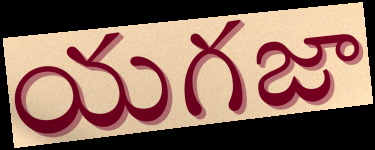
యగజా